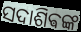
ସଦାଶିଵଙ୍କ